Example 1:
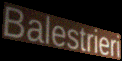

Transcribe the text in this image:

Balestrieri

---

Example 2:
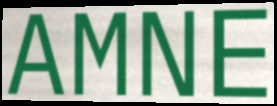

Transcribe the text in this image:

AMNE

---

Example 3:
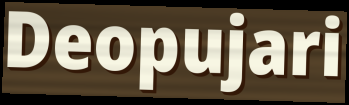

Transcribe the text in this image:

Deopujari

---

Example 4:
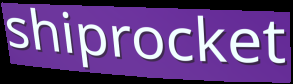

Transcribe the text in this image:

shiprocket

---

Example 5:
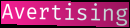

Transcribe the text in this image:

Avertising